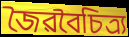
জৈৱবৈচিত্ৰ্য